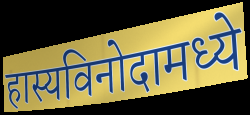
हास्यविनोदामध्ये